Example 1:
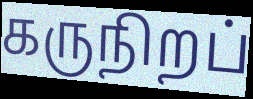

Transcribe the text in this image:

கருநிறப்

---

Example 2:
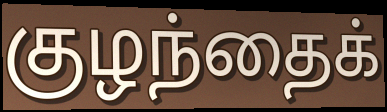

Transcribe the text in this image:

குழந்தைக்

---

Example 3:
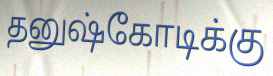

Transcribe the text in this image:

தனுஷ்கோடிக்கு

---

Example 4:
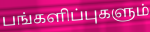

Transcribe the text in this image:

பங்களிப்புகளும்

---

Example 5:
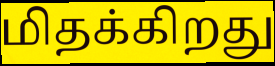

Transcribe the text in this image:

மிதக்கிறது